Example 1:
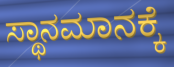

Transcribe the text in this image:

ಸ್ಥಾನಮಾನಕ್ಕೆ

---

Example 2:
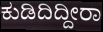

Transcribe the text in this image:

ಕುಡಿದಿದ್ದೀರಾ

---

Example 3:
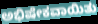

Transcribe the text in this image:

ಅಭಿಷೇಕವಾಯಿತು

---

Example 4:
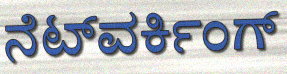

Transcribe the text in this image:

ನೆಟ್‌ವರ್ಕಿಂಗ್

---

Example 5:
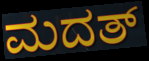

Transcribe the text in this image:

ಮದತ್